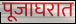
पूजाघरात